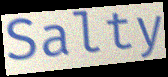
Salty